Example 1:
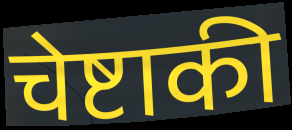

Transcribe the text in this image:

चेष्टाकी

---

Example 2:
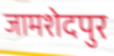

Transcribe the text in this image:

जामशेदपुर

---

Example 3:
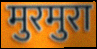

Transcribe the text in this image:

मुरमुरा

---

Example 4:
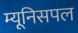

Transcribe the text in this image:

म्यूनिसपल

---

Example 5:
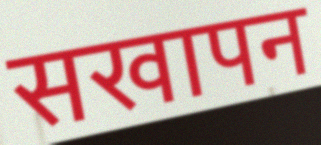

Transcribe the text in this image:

सखापन